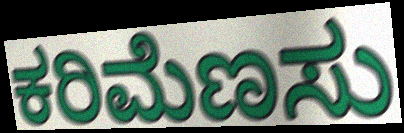
ಕರಿಮೆಣಸು